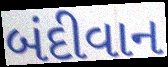
બંદીવાન